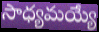
సాధ్యమయ్యే